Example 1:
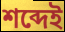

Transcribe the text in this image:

শব্দেই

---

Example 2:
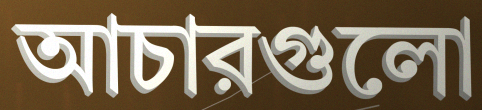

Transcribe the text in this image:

আচারগুলো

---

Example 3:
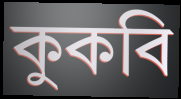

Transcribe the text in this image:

কুকবি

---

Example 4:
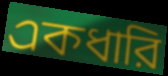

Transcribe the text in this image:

একধারি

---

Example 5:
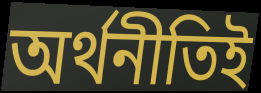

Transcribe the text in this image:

অর্থনীতিই